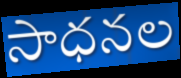
సాధనల